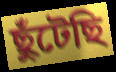
ছুঁটেছি